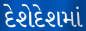
દેશેદેશમાં